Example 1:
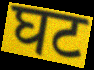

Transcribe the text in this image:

घट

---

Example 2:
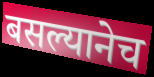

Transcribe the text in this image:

बसल्यानेच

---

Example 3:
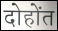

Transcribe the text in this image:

दोहोंत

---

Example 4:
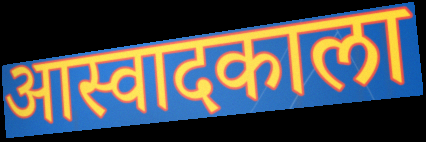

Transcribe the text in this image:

आस्वादकाला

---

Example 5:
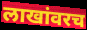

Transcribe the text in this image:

लाखांवरच